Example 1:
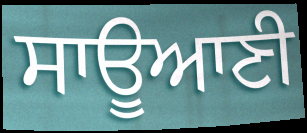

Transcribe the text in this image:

ਸਾਊਆਣੀ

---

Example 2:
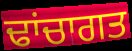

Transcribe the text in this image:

ਢਾਂਚਾਗਤ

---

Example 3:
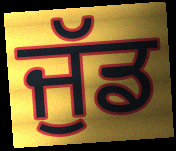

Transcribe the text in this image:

ਜੁੱਡ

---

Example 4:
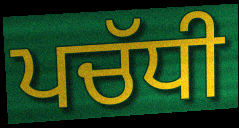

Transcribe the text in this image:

ਪਚੱਧੀ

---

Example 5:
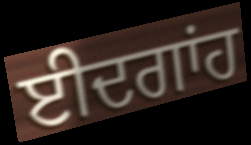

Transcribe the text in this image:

ਈਦਗਾਂਹ